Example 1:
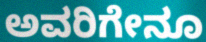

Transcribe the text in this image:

ಅವರಿಗೇನೂ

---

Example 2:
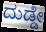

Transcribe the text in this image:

ದುಡ್ಡೇ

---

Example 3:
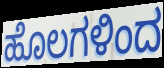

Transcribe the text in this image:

ಹೊಲಗಳಿಂದ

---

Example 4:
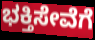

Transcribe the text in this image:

ಭಕ್ತಿಸೇವೆಗೆ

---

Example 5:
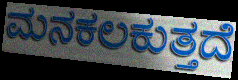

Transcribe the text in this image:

ಮನಕಲಕುತ್ತದೆ